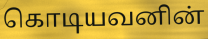
கொடியவனின்